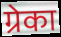
ग्रेका